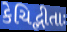
કેચિદ્ભીતાઃ